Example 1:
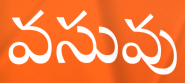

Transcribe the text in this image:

వసువు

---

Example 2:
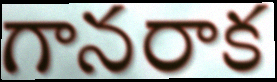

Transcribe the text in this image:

గానరాక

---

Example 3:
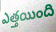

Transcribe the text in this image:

ఎత్తయింది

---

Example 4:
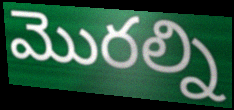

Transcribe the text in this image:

మొరల్ని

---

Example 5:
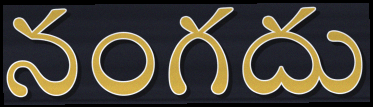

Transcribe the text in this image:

నంగదు